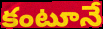
కంటూనే